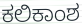
ಕಲಿಕಾಂಶ